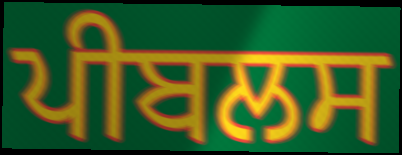
ਪੀਬਲਸ